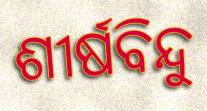
ଶୀର୍ଷବିନ୍ଦୁ